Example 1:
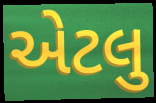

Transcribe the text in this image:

એટલુ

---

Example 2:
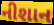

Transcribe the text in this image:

નીશાન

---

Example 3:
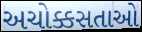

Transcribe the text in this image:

અચોક્કસતાઓ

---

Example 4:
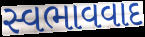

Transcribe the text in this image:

સ્વભાવવાદ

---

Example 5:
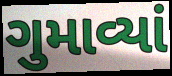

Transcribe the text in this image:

ગુમાવ્યાં